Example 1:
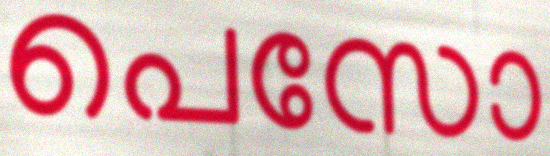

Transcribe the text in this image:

പെസോ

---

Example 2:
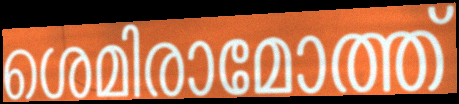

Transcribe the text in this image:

ശെമിരാമോത്ത്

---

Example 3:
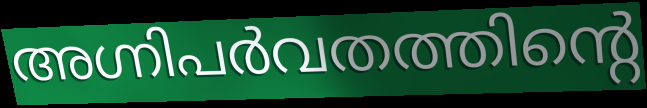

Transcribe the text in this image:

അഗ്നിപർവതത്തിന്റെ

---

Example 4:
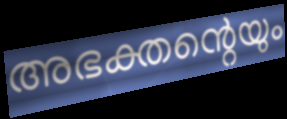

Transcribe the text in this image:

അഭക്തന്റെയും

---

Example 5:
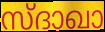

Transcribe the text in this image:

സ്ദാഖാ